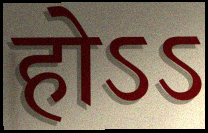
होऽऽ